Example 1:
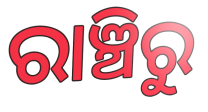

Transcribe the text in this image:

ରାଞ୍ଚିରୁ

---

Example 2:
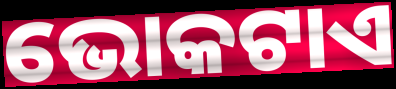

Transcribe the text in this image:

ଭୋକଟାଏ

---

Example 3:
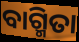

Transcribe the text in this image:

ବାଗ୍ମିତା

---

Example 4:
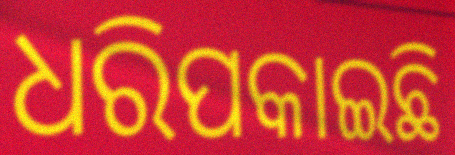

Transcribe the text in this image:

ଧରିପକାଇଛି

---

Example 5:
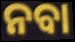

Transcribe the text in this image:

ନବା